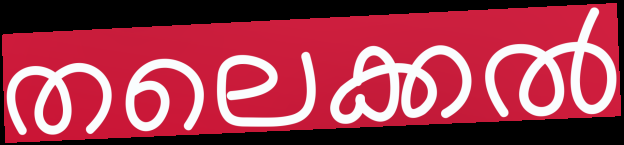
തലെക്കൽ